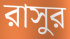
রাসুর